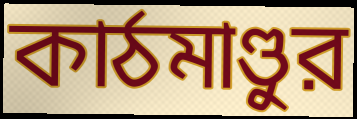
কাঠমাণ্ডুর